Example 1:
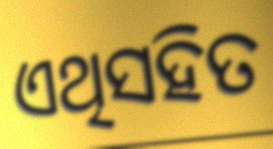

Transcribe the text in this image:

ଏଥିସହିତ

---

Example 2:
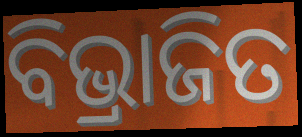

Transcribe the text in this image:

ବିଭ୍ରାଜିତ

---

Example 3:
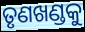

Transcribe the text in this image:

ତୃଣଖଣ୍ଡକୁ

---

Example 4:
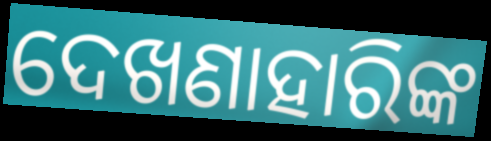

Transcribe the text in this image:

ଦେଖଣାହାରିଙ୍କ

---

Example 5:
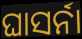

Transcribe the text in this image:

ଘାସର୍ନା